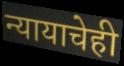
न्यायाचेही